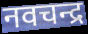
नवचन्द्र